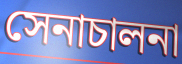
সেনাচালনা